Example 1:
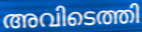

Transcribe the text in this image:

അവിടെത്തി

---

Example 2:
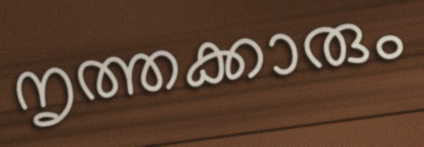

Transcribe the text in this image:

നൃത്തക്കാരും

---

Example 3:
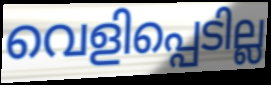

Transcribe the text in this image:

വെളിപ്പെടില്ല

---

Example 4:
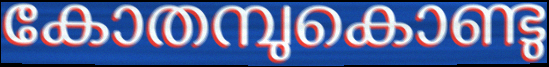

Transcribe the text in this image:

കോതമ്പുകൊണ്ടു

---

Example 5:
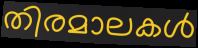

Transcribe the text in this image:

തിരമാലകൾ